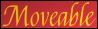
Moveable